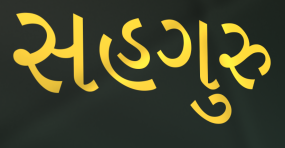
સહગુરુ